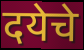
दयेचे